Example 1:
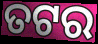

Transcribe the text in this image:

ତଟର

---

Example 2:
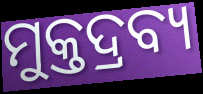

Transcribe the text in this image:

ମୁକ୍ତଦ୍ରବ୍ୟ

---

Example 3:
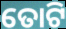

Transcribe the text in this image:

ତୋଟି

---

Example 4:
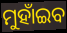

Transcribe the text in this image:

ମୁହାଁଇବ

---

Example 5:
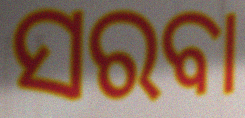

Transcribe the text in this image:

ସରବା